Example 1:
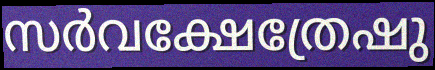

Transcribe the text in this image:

സർവക്ഷേത്രേഷു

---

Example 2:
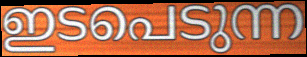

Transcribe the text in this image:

ഇടപെടുന്ന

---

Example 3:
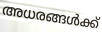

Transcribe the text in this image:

അധരങ്ങൾക്ക്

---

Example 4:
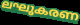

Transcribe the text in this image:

ലഘൂകരണ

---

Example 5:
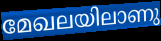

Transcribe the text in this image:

മേഖലയിലാണു